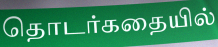
தொடர்கதையில்